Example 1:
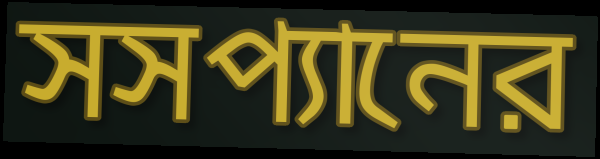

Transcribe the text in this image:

সসপ্যানের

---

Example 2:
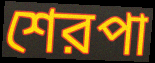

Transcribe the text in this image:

শেরপা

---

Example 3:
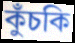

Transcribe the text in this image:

কুঁচকি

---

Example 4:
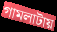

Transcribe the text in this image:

গামলাটায়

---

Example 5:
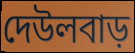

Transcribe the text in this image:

দেউলবাড়